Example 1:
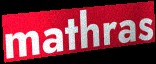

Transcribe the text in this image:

mathras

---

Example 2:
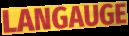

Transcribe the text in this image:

LANGAUGE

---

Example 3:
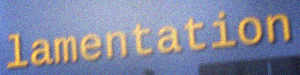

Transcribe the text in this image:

lamentation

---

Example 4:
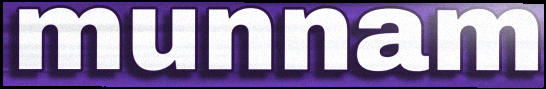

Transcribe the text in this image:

munnam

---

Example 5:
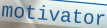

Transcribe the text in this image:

motivator